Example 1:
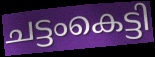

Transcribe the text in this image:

ചട്ടംകെട്ടി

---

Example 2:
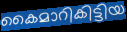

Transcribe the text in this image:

കൈമാറികിട്ടിയ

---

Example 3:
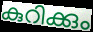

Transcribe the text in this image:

കുറിക്കും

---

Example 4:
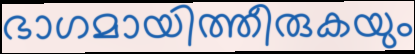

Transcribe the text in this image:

ഭാഗമായിത്തീരുകയും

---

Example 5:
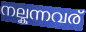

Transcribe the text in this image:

നല്കുന്നവര്